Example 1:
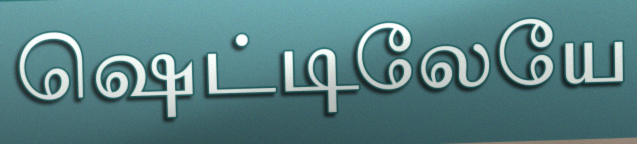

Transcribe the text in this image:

ஷெட்டிலேயே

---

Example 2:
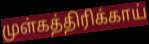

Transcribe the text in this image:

முள்கத்திரிக்காய்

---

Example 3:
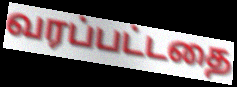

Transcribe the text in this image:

வரப்பட்டதை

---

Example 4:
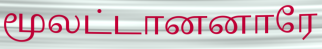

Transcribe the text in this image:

மூலட்டானனாரே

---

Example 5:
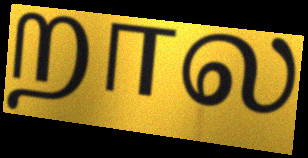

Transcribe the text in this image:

றால